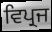
ਵਿਪ੍ਰਜ